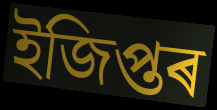
ইজিপ্তৰ